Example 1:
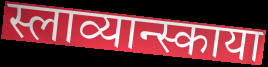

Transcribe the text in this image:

स्लाव्यान्स्काया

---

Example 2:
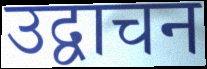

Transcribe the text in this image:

उद्वाचन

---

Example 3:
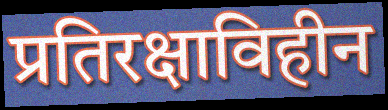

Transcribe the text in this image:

प्रतिरक्षाविहीन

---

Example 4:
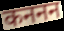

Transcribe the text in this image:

कननन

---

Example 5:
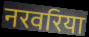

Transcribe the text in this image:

नरवरिया